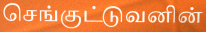
செங்குட்டுவனின்